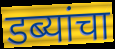
डब्यांचा